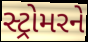
સ્ટ્રોમરને